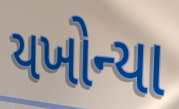
યખોન્યા